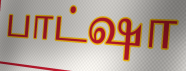
பாட்ஷா